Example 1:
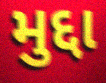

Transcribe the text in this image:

મુદ્દા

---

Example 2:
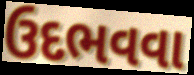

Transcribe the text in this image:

ઉદભવવા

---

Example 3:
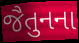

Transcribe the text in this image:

જૈતુનના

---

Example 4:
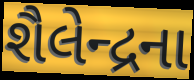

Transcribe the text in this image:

શૈલેન્દ્રના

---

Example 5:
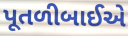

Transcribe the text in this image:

પૂતળીબાઈએ